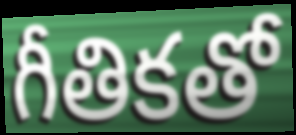
గీతికతో